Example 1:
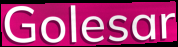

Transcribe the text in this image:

Golesar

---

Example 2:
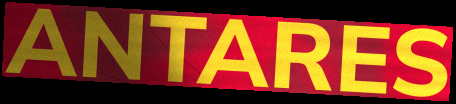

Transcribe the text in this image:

ANTARES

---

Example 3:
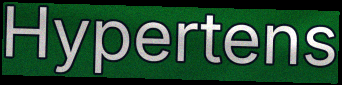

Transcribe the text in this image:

Hypertens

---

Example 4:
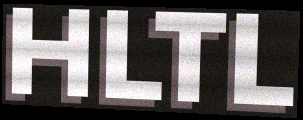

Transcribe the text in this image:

HLTL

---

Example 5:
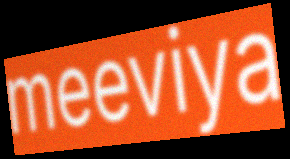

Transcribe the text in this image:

meeviya